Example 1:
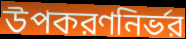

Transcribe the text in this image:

উপকরণনির্ভর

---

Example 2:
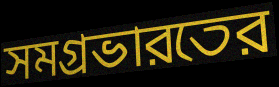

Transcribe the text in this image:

সমগ্রভারতের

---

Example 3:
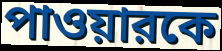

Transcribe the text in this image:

পাওয়ারকে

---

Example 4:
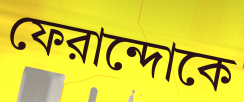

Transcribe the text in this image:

ফেরান্দোকে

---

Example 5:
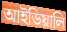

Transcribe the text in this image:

আইডিয়ালি